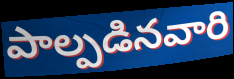
పాల్పడినవారి